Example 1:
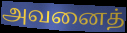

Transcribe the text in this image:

அவனைத்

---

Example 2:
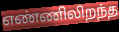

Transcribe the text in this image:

எண்ணிலிறந்த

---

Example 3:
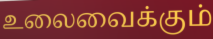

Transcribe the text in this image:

உலைவைக்கும்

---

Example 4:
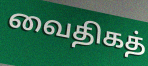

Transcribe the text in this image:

வைதிகத்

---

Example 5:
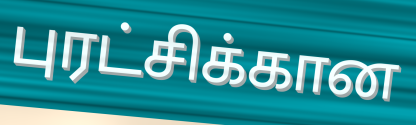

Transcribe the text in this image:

புரட்சிக்கான